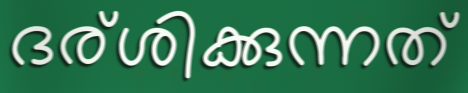
ദര്ശിക്കുന്നത്